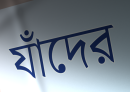
যাঁদের